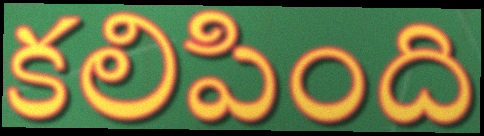
కలిపింది